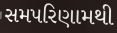
સમપરિણામથી